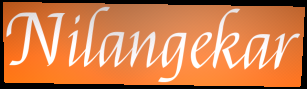
Nilangekar